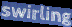
swirling